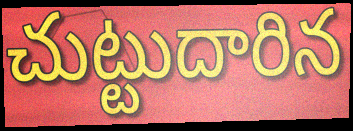
చుట్టుదారిన